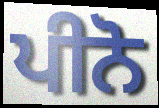
ਪੀਨੋ